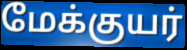
மேக்குயர்